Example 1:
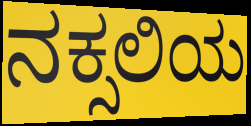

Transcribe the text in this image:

ನಕ್ಸಲಿಯ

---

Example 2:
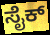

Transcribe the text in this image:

ಸೈಕ್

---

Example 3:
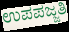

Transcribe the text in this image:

ಉಪಪಜ್ಜತಿ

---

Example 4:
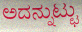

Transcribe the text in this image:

ಅದನ್ನುಟ್ಟು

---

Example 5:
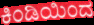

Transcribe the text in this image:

ಕಿಂಡಿಯಿಂದ